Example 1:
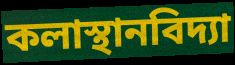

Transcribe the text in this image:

কলাস্থানবিদ্যা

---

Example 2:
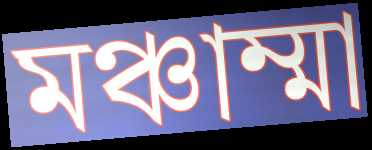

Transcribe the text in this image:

মঞ্চাম্মা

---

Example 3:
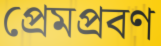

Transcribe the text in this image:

প্রেমপ্রবণ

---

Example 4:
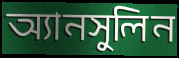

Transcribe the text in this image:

অ্যানসুলিন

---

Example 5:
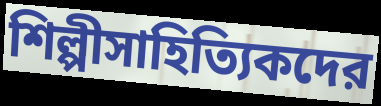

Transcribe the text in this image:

শিল্পীসাহিত্যিকদের